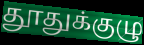
தூதுக்குழு